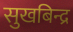
सुखबिन्द्र